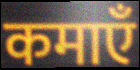
कमाएँ